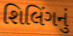
શિલિંગનું